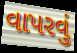
વાપરવું